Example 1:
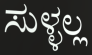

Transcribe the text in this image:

ಸುಳ್ಳಲ್ಲ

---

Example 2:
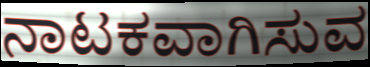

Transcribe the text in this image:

ನಾಟಕವಾಗಿಸುವ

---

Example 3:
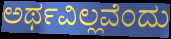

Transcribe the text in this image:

ಅರ್ಥವಿಲ್ಲವೆಂದು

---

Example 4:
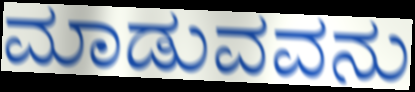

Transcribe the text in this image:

ಮಾಡುವವನು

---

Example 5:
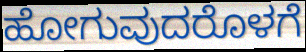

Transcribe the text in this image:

ಹೋಗುವುದರೊಳಗೆ